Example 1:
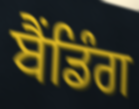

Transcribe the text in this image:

ਬੈਂਡਿੰਗ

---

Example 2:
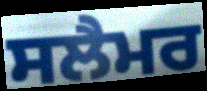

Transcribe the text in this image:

ਸਲੈਮਰ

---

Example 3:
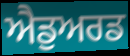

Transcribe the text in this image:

ਐਡੁਅਰਡ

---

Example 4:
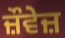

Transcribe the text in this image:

ਜ਼ੌਵੇਜ਼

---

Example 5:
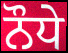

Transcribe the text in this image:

ਨੌਧੇ